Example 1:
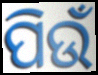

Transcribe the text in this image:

ପିଉଁ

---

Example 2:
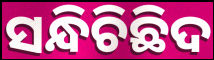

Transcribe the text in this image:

ସନ୍ଧିଚିଛିଦ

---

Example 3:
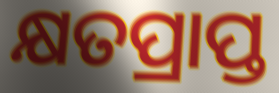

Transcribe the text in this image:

କ୍ଷତପ୍ରାପ୍ତ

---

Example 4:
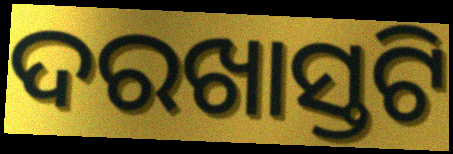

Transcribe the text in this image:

ଦରଖାସ୍ତଟି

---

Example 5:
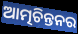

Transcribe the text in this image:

ଆତ୍ମଚିନ୍ତନର